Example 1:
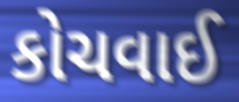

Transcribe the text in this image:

કોચવાઈ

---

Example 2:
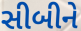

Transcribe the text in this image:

સીબીને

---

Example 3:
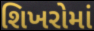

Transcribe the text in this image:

શિખરોમાં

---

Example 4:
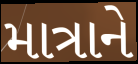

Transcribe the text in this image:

માત્રાને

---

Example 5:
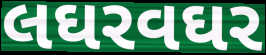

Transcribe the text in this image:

લઘરવઘર